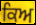
ਕਿਅ